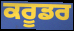
ਕਰੂਡਰ